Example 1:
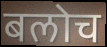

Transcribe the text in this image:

बलोच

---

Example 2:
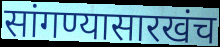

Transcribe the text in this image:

सांगण्यासारखंच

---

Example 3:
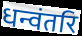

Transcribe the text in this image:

धन्वंतरि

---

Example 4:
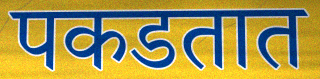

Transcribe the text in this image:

पकडतात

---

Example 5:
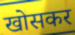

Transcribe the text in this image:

खोसकर